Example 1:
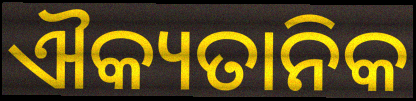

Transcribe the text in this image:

ଐକ୍ୟତାନିକ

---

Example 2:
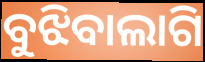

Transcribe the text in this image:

ବୁଝିବାଲାଗି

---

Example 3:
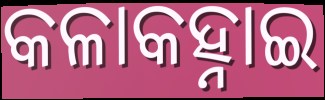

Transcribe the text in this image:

କଳାକହ୍ନାଇ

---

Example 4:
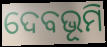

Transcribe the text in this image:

ଦେବଭୂମି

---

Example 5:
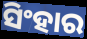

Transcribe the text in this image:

ସିଂହାର